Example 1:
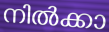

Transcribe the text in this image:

നിൽക്കാ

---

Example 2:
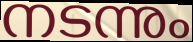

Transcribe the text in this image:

നടന്നും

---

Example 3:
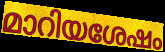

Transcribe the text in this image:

മാറിയശേഷം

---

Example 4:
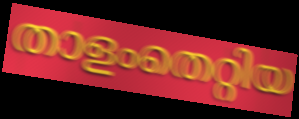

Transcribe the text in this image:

താളംതെറ്റിയ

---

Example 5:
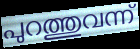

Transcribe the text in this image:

പുറത്തുവന്ന്